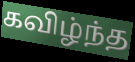
கவிழ்ந்த